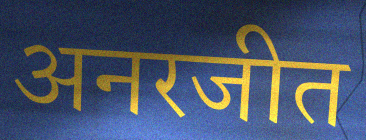
अनरजीत